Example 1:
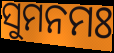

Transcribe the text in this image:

ସୁମନମଃ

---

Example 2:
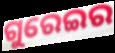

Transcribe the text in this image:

ଗୁରେଇର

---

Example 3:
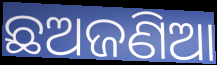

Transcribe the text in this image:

ଛଅଜଣିଆ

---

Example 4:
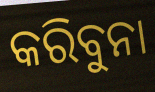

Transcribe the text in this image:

କରିବୁନା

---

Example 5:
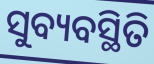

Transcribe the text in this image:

ସୁବ୍ୟବସ୍ଥିତି